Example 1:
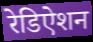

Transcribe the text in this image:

रेडिऐशन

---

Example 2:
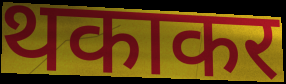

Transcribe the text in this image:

थकाकर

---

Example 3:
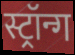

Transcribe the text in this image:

स्ट्रॉन्ग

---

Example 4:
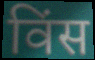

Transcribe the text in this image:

विंस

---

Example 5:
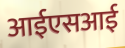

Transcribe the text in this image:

आईएसआई